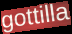
gottilla